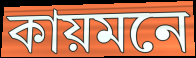
কায়মনে